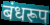
बंधरूप